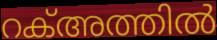
റക്അത്തിൽ